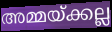
അമ്മയ്ക്കല്ല